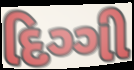
દિગ્ગી